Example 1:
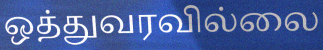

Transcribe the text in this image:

ஒத்துவரவில்லை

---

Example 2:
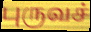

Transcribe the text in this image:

புருவச்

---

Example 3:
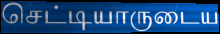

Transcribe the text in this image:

செட்டியாருடைய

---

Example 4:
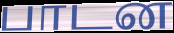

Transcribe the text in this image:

பாடன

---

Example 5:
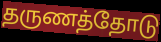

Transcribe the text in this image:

தருணத்தோடு